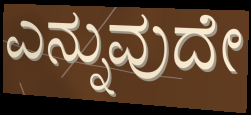
ಎನ್ನುವುದೇ